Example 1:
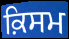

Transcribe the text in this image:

ਕ਼ਿਸਮ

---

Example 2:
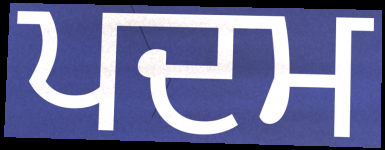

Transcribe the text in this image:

ਪਦਮ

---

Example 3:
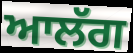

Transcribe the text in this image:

ਆਲੱਗ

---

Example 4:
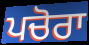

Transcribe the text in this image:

ਪਚੋਰਾ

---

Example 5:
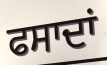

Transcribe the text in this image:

ਫਸਾਦਾਂ